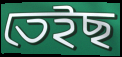
তেইছ